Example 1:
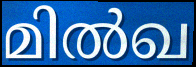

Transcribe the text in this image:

മിൽഖ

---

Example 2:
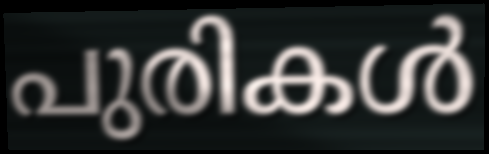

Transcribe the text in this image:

പുരികൾ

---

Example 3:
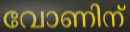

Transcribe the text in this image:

വോണിന്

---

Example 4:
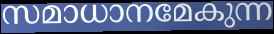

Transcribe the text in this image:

സമാധാനമേകുന്ന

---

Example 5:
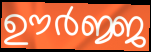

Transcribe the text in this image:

ഊർജ്ജ